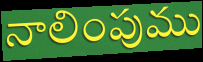
నాలింపుము